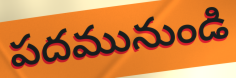
పదమునుండి